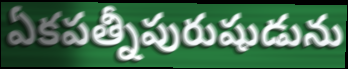
ఏకపత్నీపురుషుడును